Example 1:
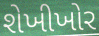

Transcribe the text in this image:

શેખીખોર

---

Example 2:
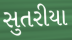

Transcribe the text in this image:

સુતરીયા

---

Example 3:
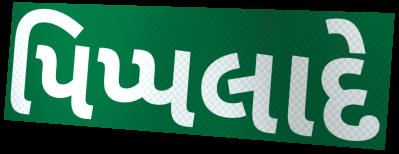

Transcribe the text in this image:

પિપ્પલાદે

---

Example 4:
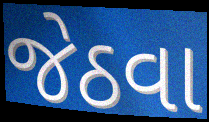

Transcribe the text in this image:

જેઠવા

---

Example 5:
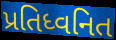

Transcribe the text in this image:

પ્રતિધ્વનિત